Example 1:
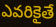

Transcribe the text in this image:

ఎవరికైతే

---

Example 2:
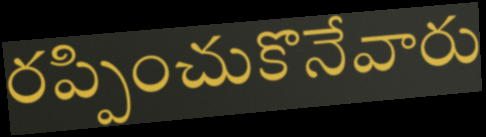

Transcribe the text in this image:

రప్పించుకొనేవారు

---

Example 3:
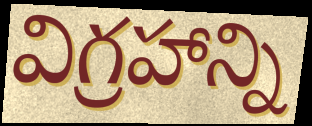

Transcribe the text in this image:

విగ్రహాన్ని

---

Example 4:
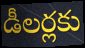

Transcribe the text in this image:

డీలర్లకు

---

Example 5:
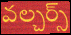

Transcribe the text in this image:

వల్చర్స్